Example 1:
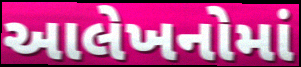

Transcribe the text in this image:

આલેખનોમાં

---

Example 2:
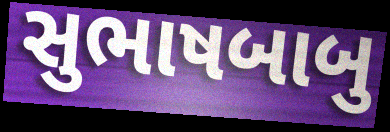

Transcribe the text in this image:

સુભાષબાબુ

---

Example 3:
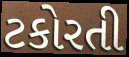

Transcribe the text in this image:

ટકોરતી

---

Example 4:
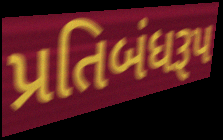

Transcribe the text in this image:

પ્રતિબંધરૂપ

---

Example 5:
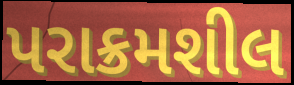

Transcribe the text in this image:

પરાક્રમશીલ